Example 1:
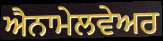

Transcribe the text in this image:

ਐਨਾਮੇਲਵੇਅਰ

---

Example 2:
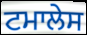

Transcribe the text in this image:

ਟਮਾਲੇਸ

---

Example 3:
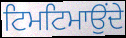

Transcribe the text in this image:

ਟਿਮਟਿਮਾਉਂਦੇ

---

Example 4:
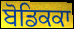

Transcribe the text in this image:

ਬੋਡਿਕਕਾ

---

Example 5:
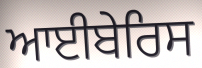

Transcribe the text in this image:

ਆਈਬੇਰਿਸ